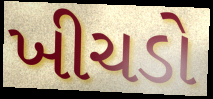
ખીચડો